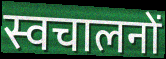
स्वचालनों